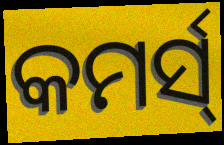
କମର୍ସ୍